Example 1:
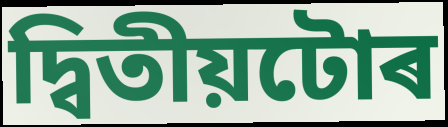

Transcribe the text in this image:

দ্বিতীয়টোৰ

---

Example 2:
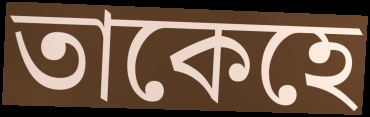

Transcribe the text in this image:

তাকেহে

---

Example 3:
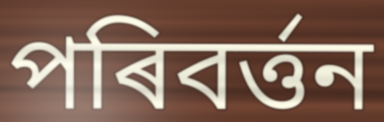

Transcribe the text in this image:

পৰিবৰ্ত্তন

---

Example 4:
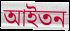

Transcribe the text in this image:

আইতন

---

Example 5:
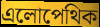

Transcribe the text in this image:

এলোপেথিক